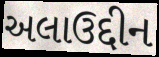
અલાઉદ્દીન